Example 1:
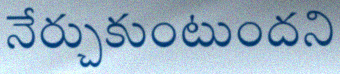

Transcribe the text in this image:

నేర్చుకుంటుందని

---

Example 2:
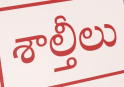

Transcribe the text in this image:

శాల్తీలు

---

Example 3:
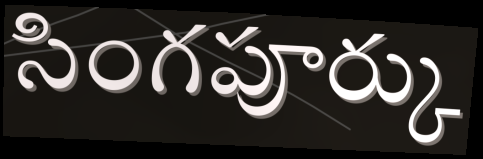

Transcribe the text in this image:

సింగపూర్కు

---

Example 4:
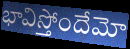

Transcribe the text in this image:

భావిస్తోందేమో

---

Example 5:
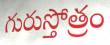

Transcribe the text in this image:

గురుస్తోత్రం